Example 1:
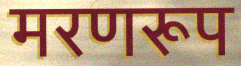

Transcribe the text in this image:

मरणरूप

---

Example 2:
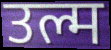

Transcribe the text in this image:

उल्म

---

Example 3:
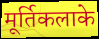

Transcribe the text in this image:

मूर्तिकलाके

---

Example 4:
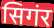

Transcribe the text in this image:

सिगंर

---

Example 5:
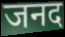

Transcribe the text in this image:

जनद